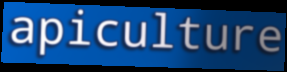
apiculture